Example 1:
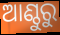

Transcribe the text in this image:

ଆଣ୍ଠୁରୁ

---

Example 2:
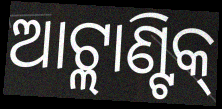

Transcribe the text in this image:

ଆଟ୍ଲାଣ୍ଟିକ୍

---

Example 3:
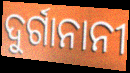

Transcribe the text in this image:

ଦୁର୍ଗାନାନୀ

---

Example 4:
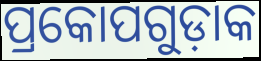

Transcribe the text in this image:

ପ୍ରକୋପଗୁଡ଼ାକ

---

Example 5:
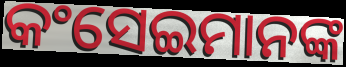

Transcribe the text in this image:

କଂସେଇମାନଙ୍କ